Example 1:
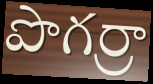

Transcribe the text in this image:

పొగర్రా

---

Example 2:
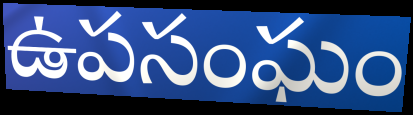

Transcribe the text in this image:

ఉపసంఘం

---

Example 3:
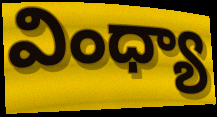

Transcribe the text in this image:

వింధ్యా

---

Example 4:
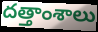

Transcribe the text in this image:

దత్తాంశాలు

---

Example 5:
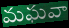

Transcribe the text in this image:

మఘవా